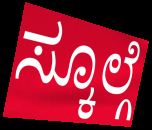
ಸ್ಕೂಲ್ಗೆ